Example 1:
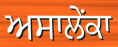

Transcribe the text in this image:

ਅਸਾਲੇਂਕਾ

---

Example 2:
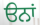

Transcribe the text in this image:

ੳਨਾਂ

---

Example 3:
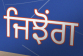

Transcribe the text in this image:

ਜਿਝੋਂਗ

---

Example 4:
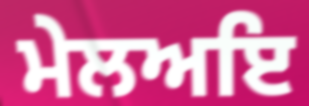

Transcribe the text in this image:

ਮੇਲਅਇ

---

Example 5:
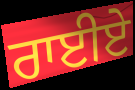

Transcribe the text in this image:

ਰਾਈਏ